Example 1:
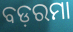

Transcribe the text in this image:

ବଡ଼ରମା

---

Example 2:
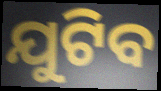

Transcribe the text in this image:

ଯୁଟିବ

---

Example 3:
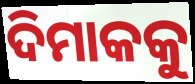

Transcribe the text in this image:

ଦିମାକକୁ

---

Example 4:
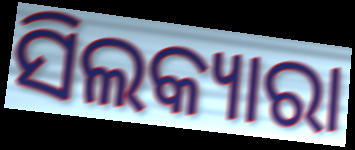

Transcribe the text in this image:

ସିଲକ୍ୟାରା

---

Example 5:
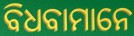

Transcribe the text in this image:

ବିଧବାମାନେ